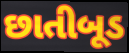
છાતીબૂડ